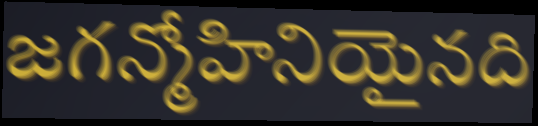
జగన్మోహినియైనది